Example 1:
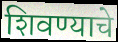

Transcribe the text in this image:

शिवण्याचे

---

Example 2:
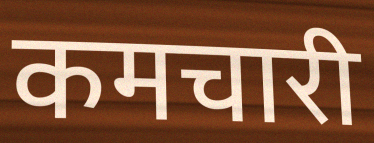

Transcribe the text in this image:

कमचारी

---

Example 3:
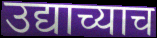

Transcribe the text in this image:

उद्याच्याच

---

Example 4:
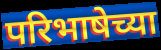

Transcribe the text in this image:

परिभाषेच्या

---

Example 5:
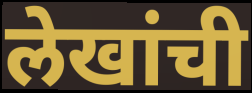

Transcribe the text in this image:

लेखांची